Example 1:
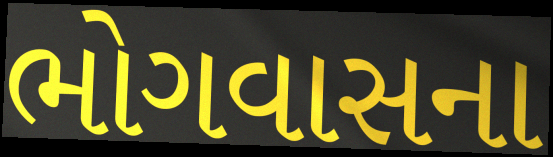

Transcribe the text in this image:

ભોગવાસના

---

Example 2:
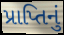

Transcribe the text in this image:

પ્રાપ્‍તિનું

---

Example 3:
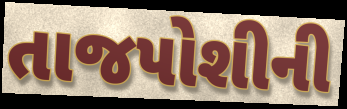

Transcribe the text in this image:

તાજપોશીની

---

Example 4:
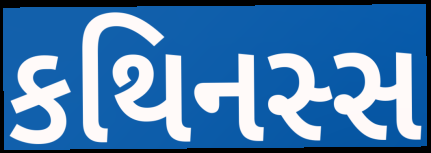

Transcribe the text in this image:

કથિનસ્સ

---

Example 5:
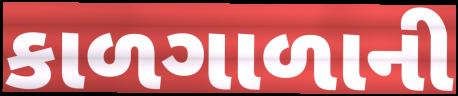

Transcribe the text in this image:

કાળગાળાની